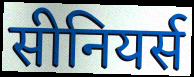
सीनियर्स